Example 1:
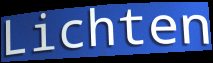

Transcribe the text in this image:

Lichten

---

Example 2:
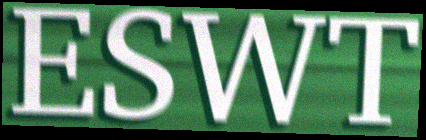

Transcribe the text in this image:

ESWT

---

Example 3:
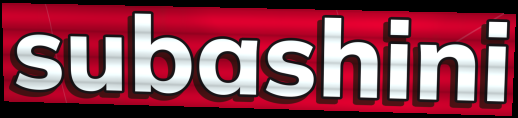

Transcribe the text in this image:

subashini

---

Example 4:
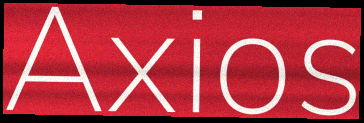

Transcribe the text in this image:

Axios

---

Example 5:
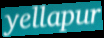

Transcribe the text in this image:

yellapur